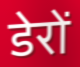
डेरों